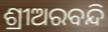
ଶ୍ରୀଅରବନ୍ଦି